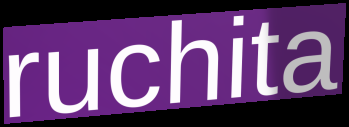
ruchita